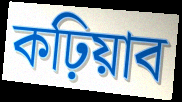
কঢ়িয়াব